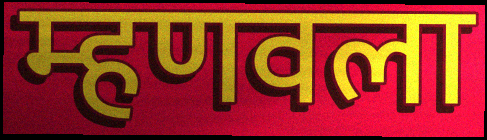
म्हणवला